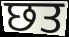
छउ